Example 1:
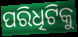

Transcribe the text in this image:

ପରିଧିଟିକୁ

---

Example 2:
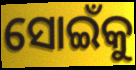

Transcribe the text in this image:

ସୋଇଁକୁ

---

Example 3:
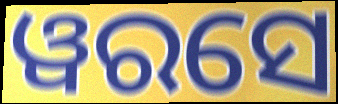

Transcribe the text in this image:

ୱରସେ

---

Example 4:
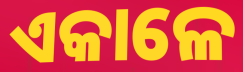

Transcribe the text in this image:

ଏକାଳେ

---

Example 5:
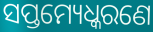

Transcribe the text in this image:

ସପ୍ତମ୍ୟେଧ୍କରଣେ